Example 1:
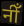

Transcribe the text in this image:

नीँ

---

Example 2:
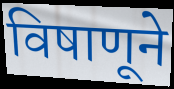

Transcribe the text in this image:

विषाणूने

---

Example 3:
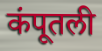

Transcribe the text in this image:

कंपूतली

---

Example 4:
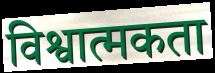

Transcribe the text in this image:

विश्वात्मकता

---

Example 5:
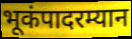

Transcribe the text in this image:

भूकंपादरम्यान